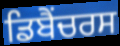
ਡਿਬੈਂਚਰਸ